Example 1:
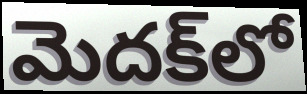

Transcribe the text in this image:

మెదక్‌లో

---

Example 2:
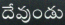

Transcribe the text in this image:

దేవుండు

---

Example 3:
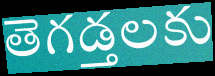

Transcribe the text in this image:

తెగడ్తలకు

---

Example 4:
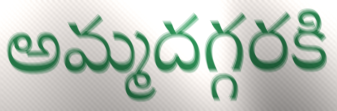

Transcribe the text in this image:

అమ్మదగ్గరకి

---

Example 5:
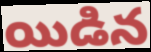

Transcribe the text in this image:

యిడిన